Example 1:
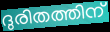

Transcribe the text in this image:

ദുരിതത്തിന്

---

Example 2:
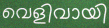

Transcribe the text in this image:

വെളിവായി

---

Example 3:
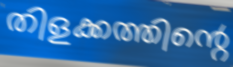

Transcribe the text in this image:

തിളക്കത്തിന്റെ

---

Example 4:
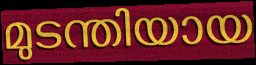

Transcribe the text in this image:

മുടന്തിയായ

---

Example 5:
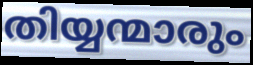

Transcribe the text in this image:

തിയ്യന്മാരും